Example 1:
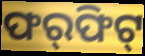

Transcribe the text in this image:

ଫର୍‍ଫିଟ୍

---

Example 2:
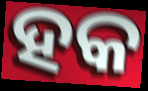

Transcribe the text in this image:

ହକ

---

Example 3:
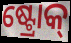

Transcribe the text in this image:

ଷ୍ଟ୍ରୋକ୍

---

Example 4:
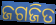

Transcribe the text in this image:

ଜଗଜିତ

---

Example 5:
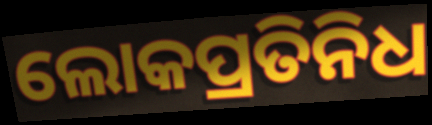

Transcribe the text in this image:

ଲୋକପ୍ରତିନିଧ